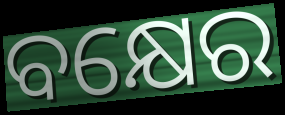
ବକ୍ଷେର